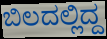
ಬಿಲದಲ್ಲಿದ್ದ